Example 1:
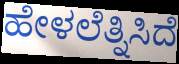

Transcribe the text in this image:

ಹೇಳಲೆತ್ನಿಸಿದೆ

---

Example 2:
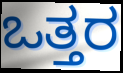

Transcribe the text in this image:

ಒತ್ತರ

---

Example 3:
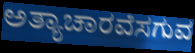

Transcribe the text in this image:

ಅತ್ಯಾಚಾರವೆಸಗುವ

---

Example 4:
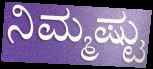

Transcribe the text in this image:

ನಿಮ್ಮಷ್ಟು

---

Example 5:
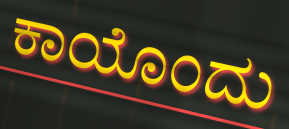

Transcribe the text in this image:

ಕಾಯೊಂದು